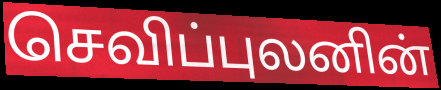
செவிப்புலனின்